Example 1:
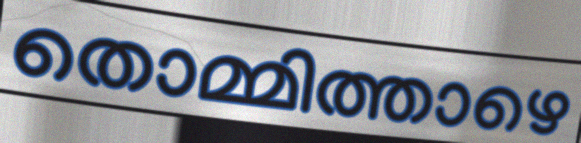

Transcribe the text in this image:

തൊമ്മിത്താഴെ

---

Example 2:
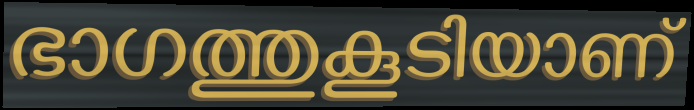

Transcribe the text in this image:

ഭാഗത്തുകൂടിയാണ്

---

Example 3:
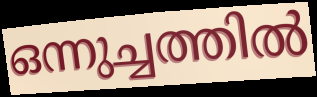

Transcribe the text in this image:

ഒന്നുച്ചത്തിൽ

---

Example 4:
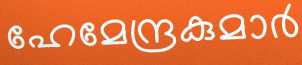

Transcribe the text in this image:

ഹേമേന്ദ്രകുമാർ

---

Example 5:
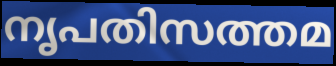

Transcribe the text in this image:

നൃപതിസത്തമ